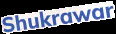
Shukrawar